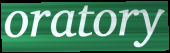
oratory